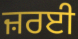
ਜ਼ਰਈ